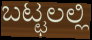
ಬಟ್ಟಲಲ್ಲಿ